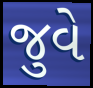
જુવે